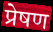
प्रेषण